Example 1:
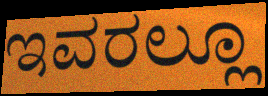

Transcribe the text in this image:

ಇವರಲ್ಲೂ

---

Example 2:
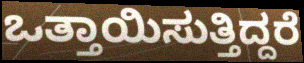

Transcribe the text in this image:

ಒತ್ತಾಯಿಸುತ್ತಿದ್ದರೆ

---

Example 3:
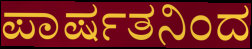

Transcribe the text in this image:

ಪಾರ್ಷತನಿಂದ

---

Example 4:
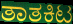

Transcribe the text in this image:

ತಾತಕಿಟ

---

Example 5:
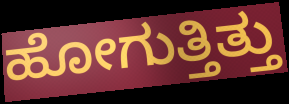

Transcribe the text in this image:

ಹೋಗುತ್ತಿತ್ತು